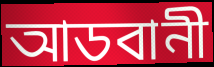
আডবানী